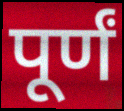
पूर्णं